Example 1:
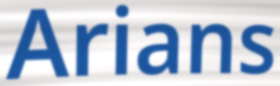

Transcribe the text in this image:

Arians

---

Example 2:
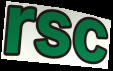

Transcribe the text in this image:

rsc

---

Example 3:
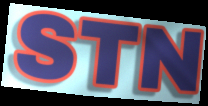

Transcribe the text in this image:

STN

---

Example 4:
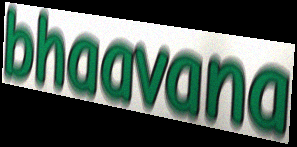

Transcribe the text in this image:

bhaavana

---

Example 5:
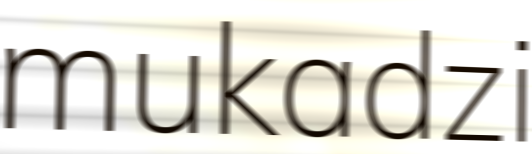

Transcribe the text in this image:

mukadzi